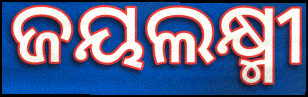
ଜୟଲକ୍ଷ୍ମୀ